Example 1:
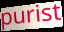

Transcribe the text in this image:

purist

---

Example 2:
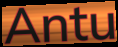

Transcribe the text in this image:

Antu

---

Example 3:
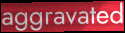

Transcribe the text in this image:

aggravated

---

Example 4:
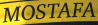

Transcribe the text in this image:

MOSTAFA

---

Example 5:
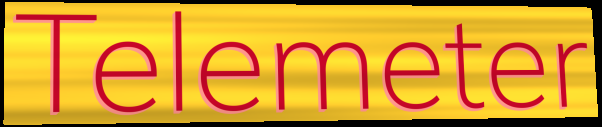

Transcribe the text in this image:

Telemeter